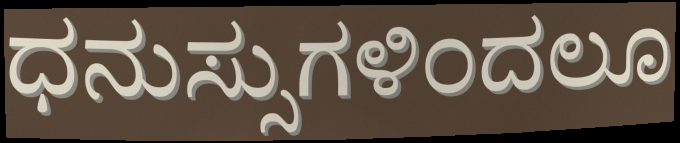
ಧನುಸ್ಸುಗಳಿಂದಲೂ